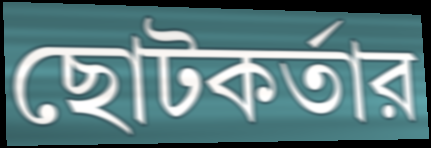
ছোটকর্তার